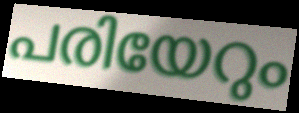
പരിയേറും